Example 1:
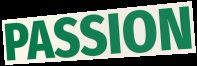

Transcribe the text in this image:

PASSION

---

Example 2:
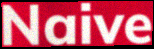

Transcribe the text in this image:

Naive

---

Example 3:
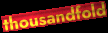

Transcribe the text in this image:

thousandfold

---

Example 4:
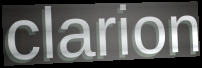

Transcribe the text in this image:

clarion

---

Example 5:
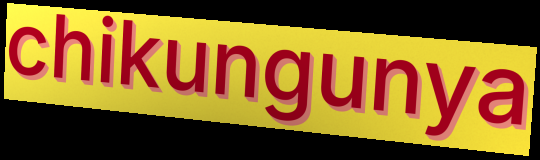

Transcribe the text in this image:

chikungunya